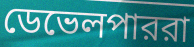
ডেভেলপাররা